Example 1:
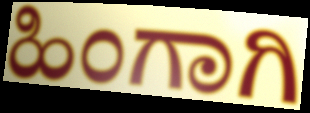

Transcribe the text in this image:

ಹಿಂಗಾಗಿ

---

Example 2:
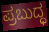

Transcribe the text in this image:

ಪ್ರಬುದ್ಧ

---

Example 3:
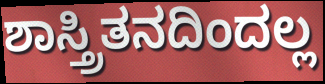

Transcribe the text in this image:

ಶಾಸ್ತ್ರಿತನದಿಂದಲ್ಲ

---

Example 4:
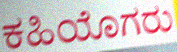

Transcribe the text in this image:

ಕಹಿಯೊಗರು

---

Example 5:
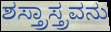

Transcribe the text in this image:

ಶಸ್ತ್ರಾಸ್ತ್ರವನು